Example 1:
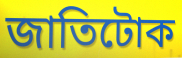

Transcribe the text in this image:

জাতিটোক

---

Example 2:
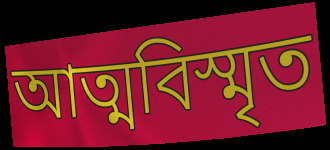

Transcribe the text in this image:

আত্মবিস্মৃত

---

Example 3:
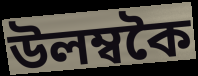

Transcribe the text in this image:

উলম্বকৈ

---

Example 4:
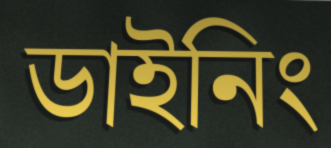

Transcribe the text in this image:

ডাইনিং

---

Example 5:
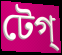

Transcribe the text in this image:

টেগ্